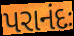
પરાનંદઃ